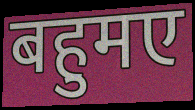
बहुमए